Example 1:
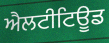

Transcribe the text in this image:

ਐਲਟੀਟਿਊਡ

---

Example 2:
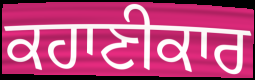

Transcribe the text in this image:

ਕਹਾਣੀਕਾਰ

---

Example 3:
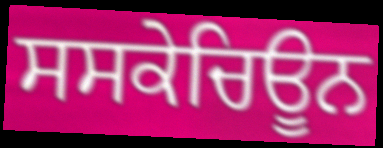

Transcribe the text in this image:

ਸਸਕੇਚਿਊਨ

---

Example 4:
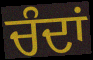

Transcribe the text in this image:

ਚੰਦਾਂ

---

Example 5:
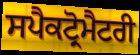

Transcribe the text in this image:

ਸਪੈਕਟ੍ਰੋਮੈਟਰੀ